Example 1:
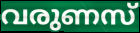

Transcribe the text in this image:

വരുണസ്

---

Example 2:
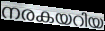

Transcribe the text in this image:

നരകയറിയ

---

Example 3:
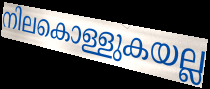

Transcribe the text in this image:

നിലകൊള്ളുകയല്ല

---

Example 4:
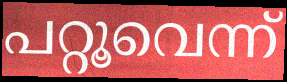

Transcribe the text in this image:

പറ്റൂവെന്ന്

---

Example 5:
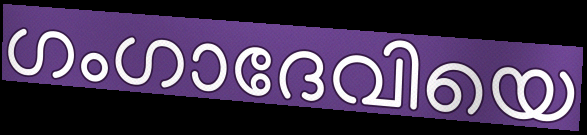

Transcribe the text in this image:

ഗംഗാദേവിയെ